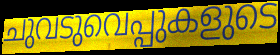
ചുവടുവെപ്പുകളുടെ